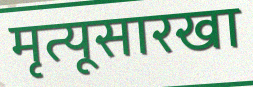
मृत्यूसारखा